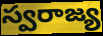
స్వరాజ్య